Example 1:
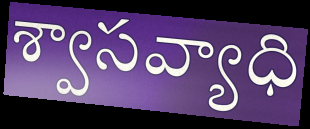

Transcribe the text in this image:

శ్వాసవ్యాధి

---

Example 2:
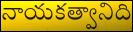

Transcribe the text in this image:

నాయకత్వానిది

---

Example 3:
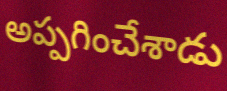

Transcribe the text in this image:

అప్పగించేశాడు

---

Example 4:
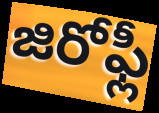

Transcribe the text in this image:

జిరోఫ్లీ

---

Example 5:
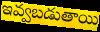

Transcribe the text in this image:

ఇవ్వబడుతాయి